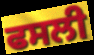
ਫਸਲੀ